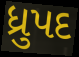
ધ્રુપદ